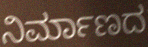
ನಿರ್ಮಾಣದ